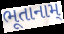
ભૂતાનામ્